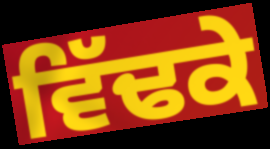
ਵਿੱਢਕੇ